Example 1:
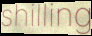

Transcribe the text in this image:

shilling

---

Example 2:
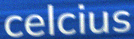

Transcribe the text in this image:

celcius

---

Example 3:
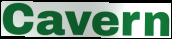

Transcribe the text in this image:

Cavern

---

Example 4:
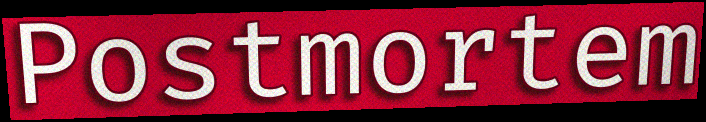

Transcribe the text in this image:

Postmortem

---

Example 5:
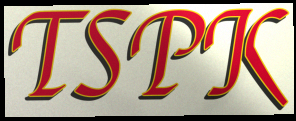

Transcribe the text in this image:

TSPK